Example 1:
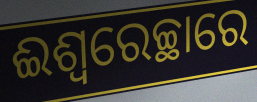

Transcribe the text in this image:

ଈଶ୍ୱରେଚ୍ଛାରେ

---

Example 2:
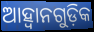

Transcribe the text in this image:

ଆହ୍ବାନଗୁଡ଼ିକ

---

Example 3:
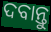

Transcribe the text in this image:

ଦବାନ୍ତୁ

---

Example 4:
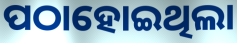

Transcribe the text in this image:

ପଠାହୋଇଥିଲା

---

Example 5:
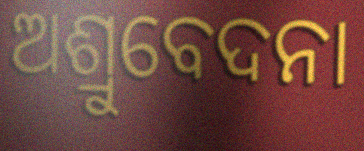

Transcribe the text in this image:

ଅଶ୍ରୁବେଦନା